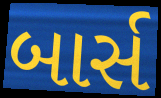
બાર્સ